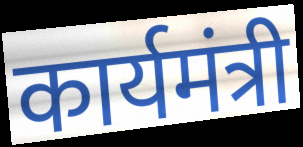
कार्यमंत्री